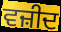
ਵਜ਼ੀਦ